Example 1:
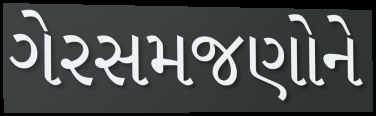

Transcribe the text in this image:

ગેરસમજણોને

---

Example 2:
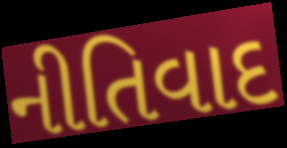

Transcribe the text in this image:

નીતિવાદ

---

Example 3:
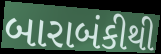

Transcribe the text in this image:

બારાબંકીથી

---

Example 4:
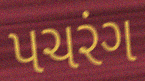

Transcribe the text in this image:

પચરંગ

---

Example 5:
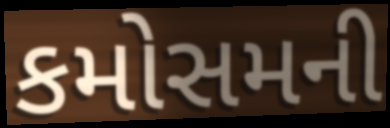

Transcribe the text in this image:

કમોસમની